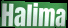
Halima